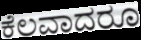
ಕೆಲವಾದರೂ